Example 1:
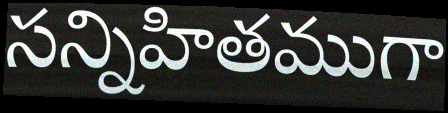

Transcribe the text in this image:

సన్నిహితముగా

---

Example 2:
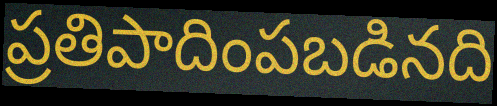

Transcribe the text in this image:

ప్రతిపాదింపబడినది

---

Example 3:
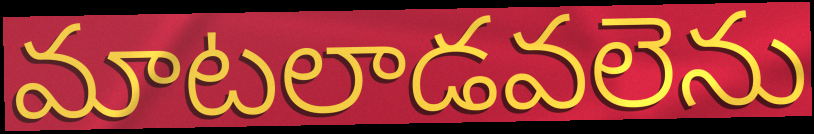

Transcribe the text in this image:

మాటలాడవలెను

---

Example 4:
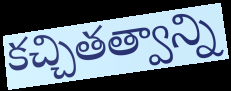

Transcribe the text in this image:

కచ్చితత్వాన్ని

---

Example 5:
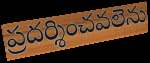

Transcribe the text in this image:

ప్రదర్శించవలెను